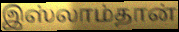
இஸ்லாம்தான்